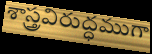
శాస్త్రవిరుద్ధముగా